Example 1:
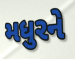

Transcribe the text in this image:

મધુરને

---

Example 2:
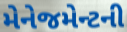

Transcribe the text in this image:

મેનેજમેન્ટની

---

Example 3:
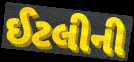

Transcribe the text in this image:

ઈટલીની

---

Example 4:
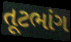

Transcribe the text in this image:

તૂટભાંગ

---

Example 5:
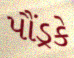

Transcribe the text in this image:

પૌંડ્રકે